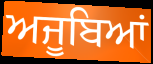
ਅਜੂਬਿਆਂ